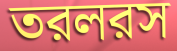
তরলরস